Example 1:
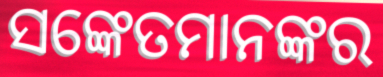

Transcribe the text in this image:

ସଙ୍କେତମାନଙ୍କର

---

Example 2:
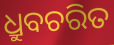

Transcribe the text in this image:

ଧ୍ରୁବଚରିତ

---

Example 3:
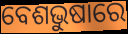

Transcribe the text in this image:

ବେଶଭୁଷାରେ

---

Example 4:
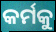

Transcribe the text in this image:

କର୍ମକୁ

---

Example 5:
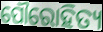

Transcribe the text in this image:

ପୌରୋହିତ୍ୟ